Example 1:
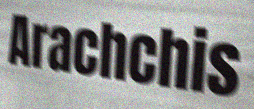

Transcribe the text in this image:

Arachchis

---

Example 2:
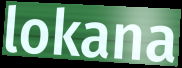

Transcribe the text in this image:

lokana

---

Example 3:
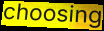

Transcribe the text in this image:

choosing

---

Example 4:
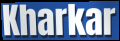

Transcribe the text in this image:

Kharkar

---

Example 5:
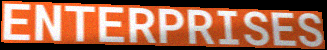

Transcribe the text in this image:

ENTERPRISES